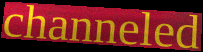
channeled